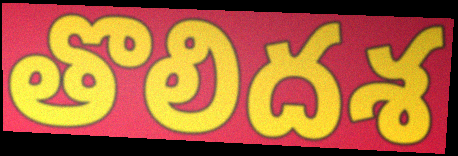
తొలిదశ